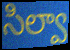
సిల్వా